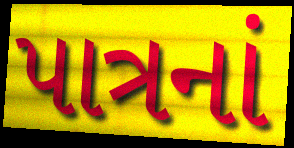
પાત્રનાં